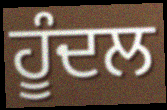
ਹੂੰਦਲ